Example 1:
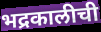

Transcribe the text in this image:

भद्रकालीची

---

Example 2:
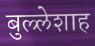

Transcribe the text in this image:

बुल्लेशाह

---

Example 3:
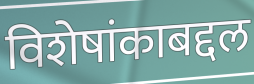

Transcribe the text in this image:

विशेषांकाबद्दल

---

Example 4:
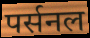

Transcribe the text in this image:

पर्सनल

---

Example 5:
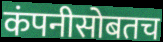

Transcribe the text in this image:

कंपनीसोबतच